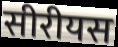
सीरीयस